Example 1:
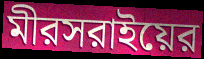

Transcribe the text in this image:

মীরসরাইয়ের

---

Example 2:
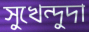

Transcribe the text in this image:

সুখেন্দুদা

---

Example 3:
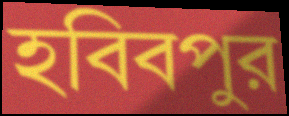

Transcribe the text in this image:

হবিবপুর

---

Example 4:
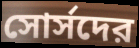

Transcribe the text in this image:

সোর্সদের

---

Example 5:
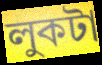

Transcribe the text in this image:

লুকটা